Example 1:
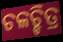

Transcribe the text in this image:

ଚଳଚ୍ଚିତ୍ର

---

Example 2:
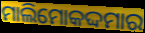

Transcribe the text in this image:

ମାଲିମୋକଦ୍ଦମାର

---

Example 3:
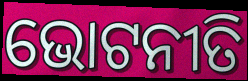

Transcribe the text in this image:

ଭୋଟନୀତି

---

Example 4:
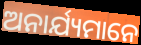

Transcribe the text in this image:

ଅନାର୍ଯ୍ୟମାନେ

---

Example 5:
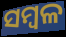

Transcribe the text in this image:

ସମ୍ବଳ